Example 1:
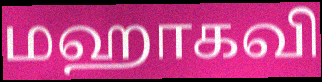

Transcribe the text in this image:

மஹாகவி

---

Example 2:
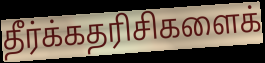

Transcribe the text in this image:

தீர்க்கதரிசிகளைக்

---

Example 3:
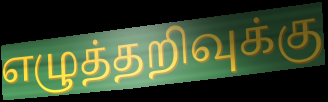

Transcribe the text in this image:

எழுத்தறிவுக்கு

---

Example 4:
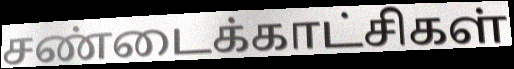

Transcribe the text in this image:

சண்டைக்காட்சிகள்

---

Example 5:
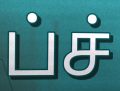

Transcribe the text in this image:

ப்ச்